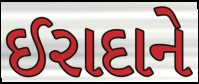
ઈરાદાને